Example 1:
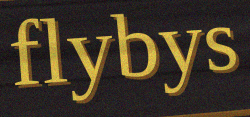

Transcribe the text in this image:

flybys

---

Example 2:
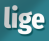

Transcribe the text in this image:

lige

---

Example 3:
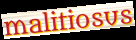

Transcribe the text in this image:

malitiosus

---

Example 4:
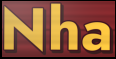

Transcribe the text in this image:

Nha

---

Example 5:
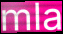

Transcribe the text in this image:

mla